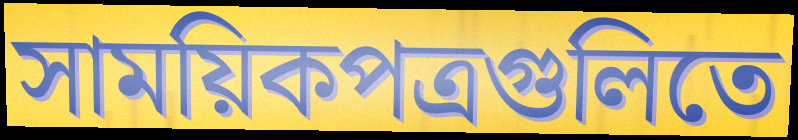
সাময়িকপত্রগুলিতে